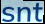
snt